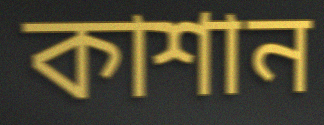
কাশান